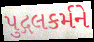
પુદ્ગલકર્મને